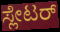
ಸ್ಲೇಟರ್